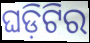
ଘଡ଼ିଟିର